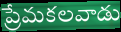
ప్రేమకలవాడు